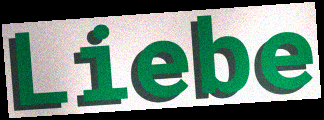
Liebe